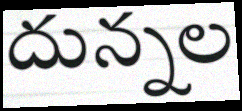
దున్నల